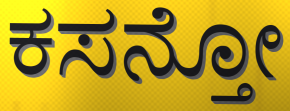
ಕಸನ್ತೋ